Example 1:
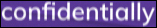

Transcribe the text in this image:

confidentially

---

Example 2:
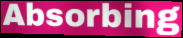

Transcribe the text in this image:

Absorbing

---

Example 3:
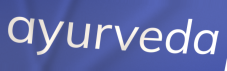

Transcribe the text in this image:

ayurveda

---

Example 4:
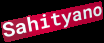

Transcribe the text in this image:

Sahityano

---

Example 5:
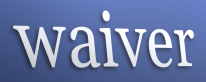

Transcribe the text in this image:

waiver